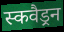
स्कवैड्रन